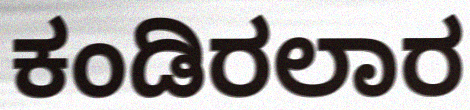
ಕಂಡಿರಲಾರ